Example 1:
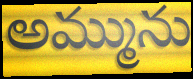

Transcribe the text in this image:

అమ్మును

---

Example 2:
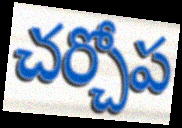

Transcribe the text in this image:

చర్చోప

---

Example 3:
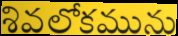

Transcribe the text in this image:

శివలోకమును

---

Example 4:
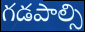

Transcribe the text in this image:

గడపాల్సి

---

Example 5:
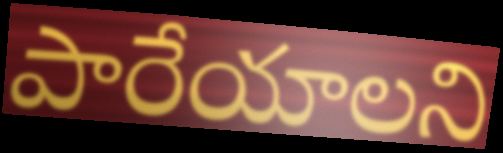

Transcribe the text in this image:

పారేయాలని